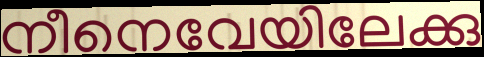
നീനെവേയിലേക്കു